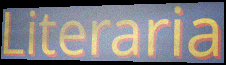
Literaria